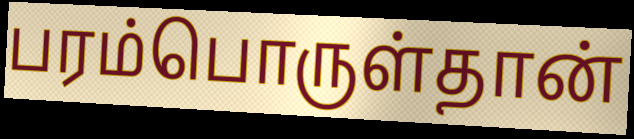
பரம்பொருள்தான்